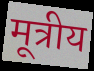
मूत्रीय